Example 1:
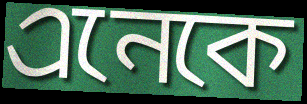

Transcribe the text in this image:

এনেকে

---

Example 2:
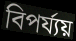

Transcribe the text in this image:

বিপৰ্য্যয়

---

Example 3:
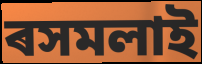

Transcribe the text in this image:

ৰসমলাই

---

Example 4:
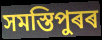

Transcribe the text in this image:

সমস্তিপুৰৰ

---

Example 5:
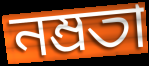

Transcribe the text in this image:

নম্ৰতা